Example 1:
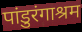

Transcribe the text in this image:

पांडुरंगाश्रम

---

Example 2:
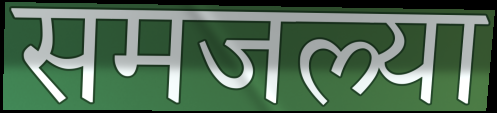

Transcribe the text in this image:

समजल्या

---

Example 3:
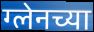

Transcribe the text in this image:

ग्लेनच्या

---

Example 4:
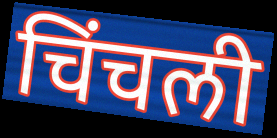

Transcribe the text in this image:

चिंचली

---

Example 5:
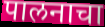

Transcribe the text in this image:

पालनाचा